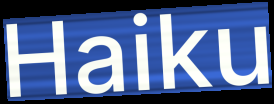
Haiku